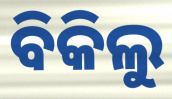
ବିକିଲୁ